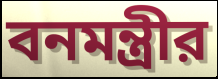
বনমন্ত্রীর